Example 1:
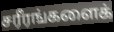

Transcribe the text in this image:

சரீரங்களைக்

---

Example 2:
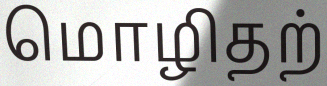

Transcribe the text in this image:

மொழிதற்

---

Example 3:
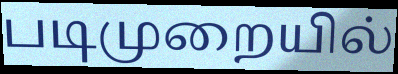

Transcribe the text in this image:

படிமுறையில்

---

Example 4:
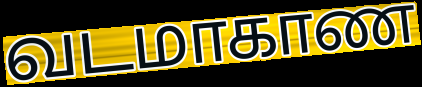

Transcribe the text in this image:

வடமாகாண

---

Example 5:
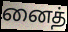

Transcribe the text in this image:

னைத்